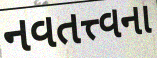
નવતત્ત્વના